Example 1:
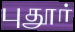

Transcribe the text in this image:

புதூர்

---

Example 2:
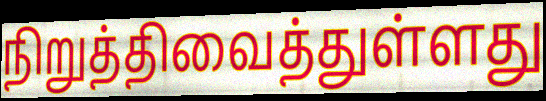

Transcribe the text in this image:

நிறுத்திவைத்துள்ளது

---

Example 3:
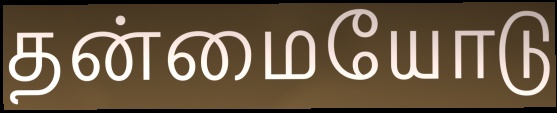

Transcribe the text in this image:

தன்மையோடு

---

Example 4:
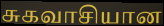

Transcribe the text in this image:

சுகவாசியான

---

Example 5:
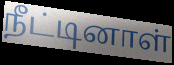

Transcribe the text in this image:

நீட்டினாள்